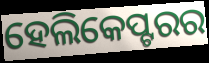
ହେଲିକେପ୍ଟରର